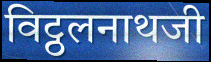
विट्ठलनाथजी